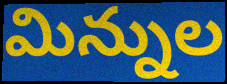
మిన్నుల